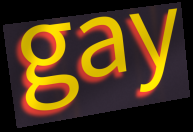
gay